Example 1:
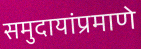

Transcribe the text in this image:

समुदायांप्रमाणे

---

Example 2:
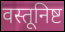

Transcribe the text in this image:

वस्तूनिष्ट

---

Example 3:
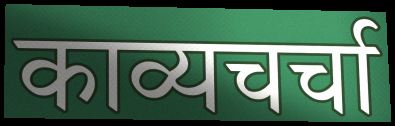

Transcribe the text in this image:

काव्यचर्चा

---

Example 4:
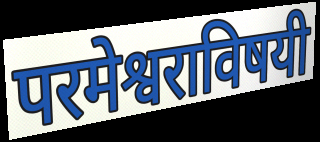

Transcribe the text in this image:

परमेश्वराविषयी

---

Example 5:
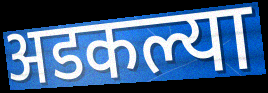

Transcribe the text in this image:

अडकल्या